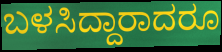
ಬಳಸಿದ್ದಾರಾದರೂ